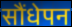
सौंधेपन